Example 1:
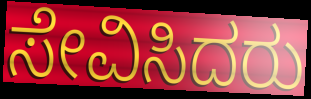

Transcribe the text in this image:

ಸೇವಿಸಿದರು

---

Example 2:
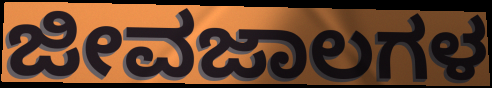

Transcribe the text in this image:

ಜೀವಜಾಲಗಳ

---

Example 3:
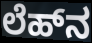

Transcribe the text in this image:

ಲೆಹ್‌ನ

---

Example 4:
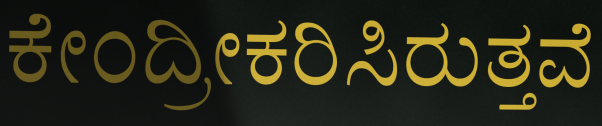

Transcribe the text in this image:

ಕೇಂದ್ರೀಕರಿಸಿರುತ್ತವೆ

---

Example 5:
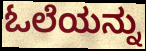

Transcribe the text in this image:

ಓಲೆಯನ್ನು